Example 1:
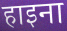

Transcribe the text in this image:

हाइना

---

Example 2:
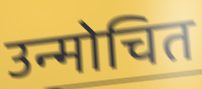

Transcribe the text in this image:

उन्मोचित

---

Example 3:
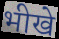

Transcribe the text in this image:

भीखे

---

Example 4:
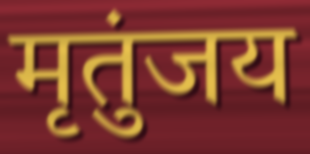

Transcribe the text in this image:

मृतुंजय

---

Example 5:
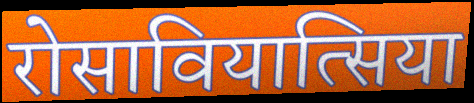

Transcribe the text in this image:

रोसावियात्सिया